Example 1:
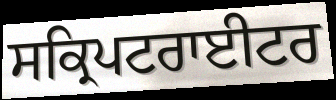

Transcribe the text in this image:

ਸਕ੍ਰਿਪਟਰਾਈਟਰ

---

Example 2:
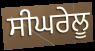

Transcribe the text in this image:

ਸੀਘਰੇਲੂ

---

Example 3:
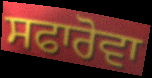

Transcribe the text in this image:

ਸਫਾਰੋਵਾ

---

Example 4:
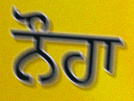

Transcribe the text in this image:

ਨੌਹਾ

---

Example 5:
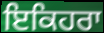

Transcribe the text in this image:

ਇਕਿਹਰਾ